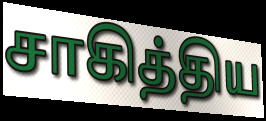
சாகித்திய